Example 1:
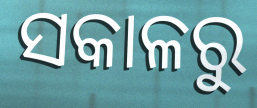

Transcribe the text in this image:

ସକାଳରୁ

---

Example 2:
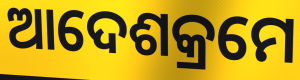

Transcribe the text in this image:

ଆଦେଶକ୍ରମେ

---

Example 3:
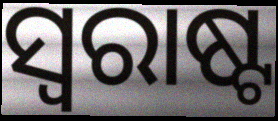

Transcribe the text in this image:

ସ୍ୱରାଷ୍ଟ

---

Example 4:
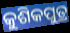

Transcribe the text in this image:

କୁଶିକପୁତ୍ର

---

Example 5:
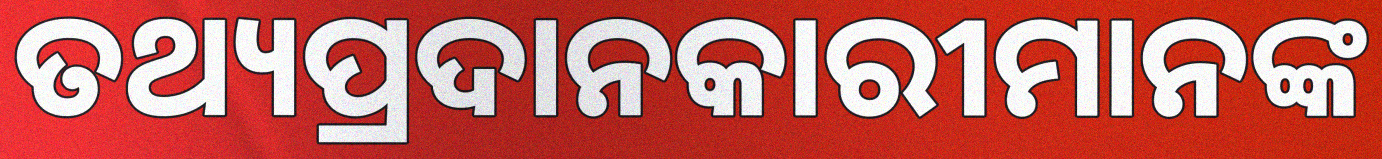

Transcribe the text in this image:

ତଥ୍ୟପ୍ରଦାନକାରୀମାନଙ୍କ